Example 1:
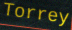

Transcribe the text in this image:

Torrey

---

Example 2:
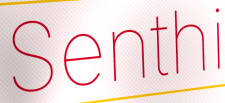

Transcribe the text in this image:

Senthi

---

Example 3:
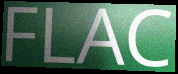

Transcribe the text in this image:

FLAC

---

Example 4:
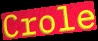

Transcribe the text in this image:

Crole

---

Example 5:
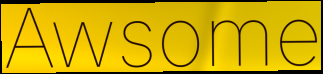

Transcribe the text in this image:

Awsome